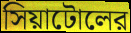
সিয়াটোলের